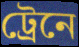
ট্রেনে